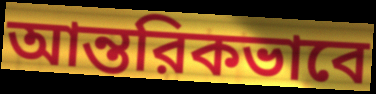
আন্তরিকভাবে